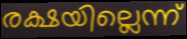
രക്ഷയില്ലെന്ന്